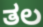
ತಲ